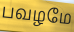
பவழமே